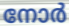
നോർ